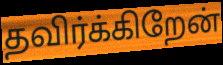
தவிர்க்கிறேன்